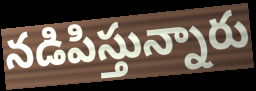
నడిపిస్తున్నారు